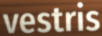
vestris